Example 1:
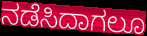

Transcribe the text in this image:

ನಡೆಸಿದಾಗಲೂ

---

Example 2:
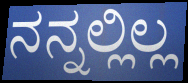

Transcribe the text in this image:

ನನ್ನಲ್ಲಿಲ್ಲ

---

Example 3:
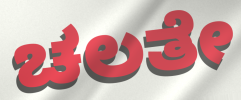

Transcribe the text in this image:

ಚಲತೇ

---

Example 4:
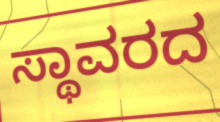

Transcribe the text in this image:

ಸ್ಥಾವರದ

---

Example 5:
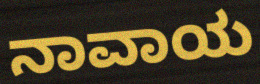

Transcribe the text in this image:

ನಾವಾಯ